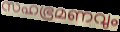
സഹഭ്രമണവും